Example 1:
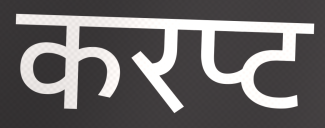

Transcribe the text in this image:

करप्ट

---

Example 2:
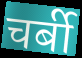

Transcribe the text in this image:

चर्बी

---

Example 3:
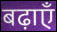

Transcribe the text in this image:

बढ़ाएँ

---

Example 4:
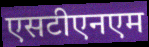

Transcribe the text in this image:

एसटीएनएम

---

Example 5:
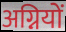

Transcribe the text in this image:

अग्नियों